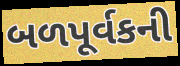
બળપૂર્વકની